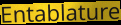
Entablature